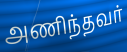
அணிந்தவர்